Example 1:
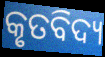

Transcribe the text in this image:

କୃତବିଦ୍ୟ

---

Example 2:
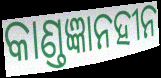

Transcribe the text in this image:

କାଣ୍ଡଜ୍ଞାନହୀନ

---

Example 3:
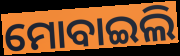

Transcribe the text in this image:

ମୋବାଇଲି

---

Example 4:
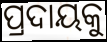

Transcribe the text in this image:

ପ୍ରଦାୟକୁ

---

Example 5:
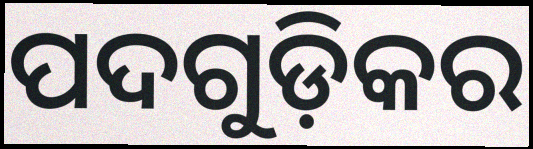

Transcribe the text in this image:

ପଦଗୁଡ଼ିକର